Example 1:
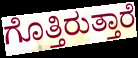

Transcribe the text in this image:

ಗೊತ್ತಿರುತ್ತಾರೆ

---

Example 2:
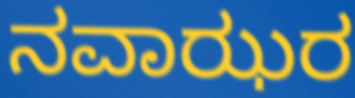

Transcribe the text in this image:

ನವಾಝರ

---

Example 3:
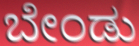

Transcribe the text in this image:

ಬೇಂಡು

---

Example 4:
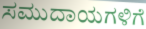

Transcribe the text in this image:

ಸಮುದಾಯಗಳಿಗೆ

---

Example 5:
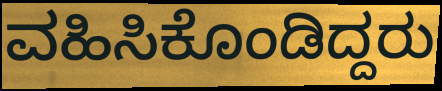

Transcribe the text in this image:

ವಹಿಸಿಕೊಂಡಿದ್ದರು